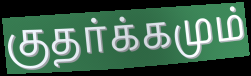
குதர்க்கமும்